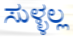
ಸುಳ್ಳಲ್ಲ